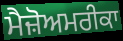
ਮੈਜ਼ੋਅਮਰੀਕਾ